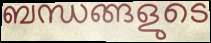
ബന്ധങ്ങളുടെ